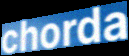
chorda